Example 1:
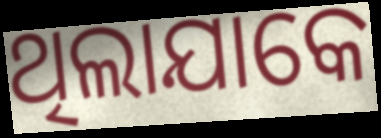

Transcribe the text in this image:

ଥିଲାଯାକେ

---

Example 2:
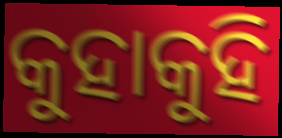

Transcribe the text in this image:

କୁହାକୁହି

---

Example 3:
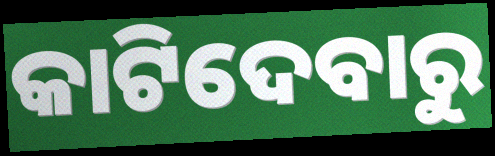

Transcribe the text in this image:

କାଟିଦେବାରୁ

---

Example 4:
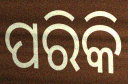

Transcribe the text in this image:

ପରିକି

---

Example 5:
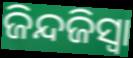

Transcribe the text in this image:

ଜିନ୍ଦଜିସ୍ୱା